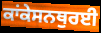
ਕਾਂਕੇਸਨਥੁਰਈ